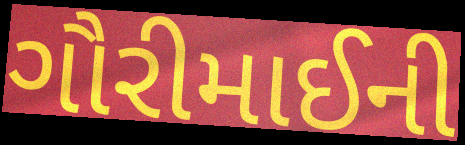
ગૌરીમાઈની